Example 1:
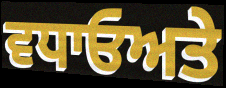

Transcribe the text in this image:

ਵਧਾਓਅਤੇ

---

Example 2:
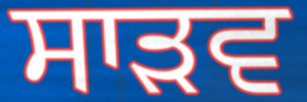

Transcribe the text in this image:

ਸਾੜਵ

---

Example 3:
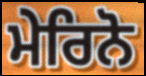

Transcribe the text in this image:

ਮੇਰਿਨੋ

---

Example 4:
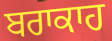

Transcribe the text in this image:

ਬਰਾਕਾਹ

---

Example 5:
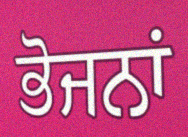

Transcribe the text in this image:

ਭੋਜਨਾਂ